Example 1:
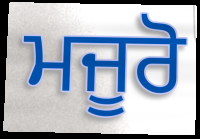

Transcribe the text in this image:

ਮਜੂਰੋ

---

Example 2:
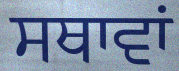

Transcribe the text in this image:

ਸਥਾਵਾਂ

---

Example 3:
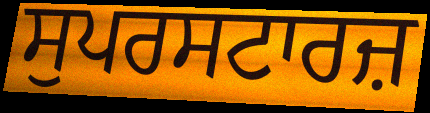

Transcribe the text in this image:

ਸੁਪਰਸਟਾਰਜ਼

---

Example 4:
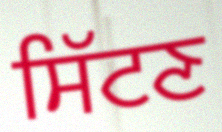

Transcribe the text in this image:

ਸਿੱਟਣ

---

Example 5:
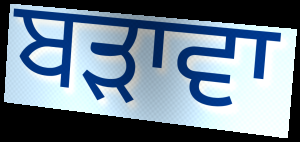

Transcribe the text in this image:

ਬੜਾਵਾ